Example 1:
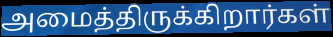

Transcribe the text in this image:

அமைத்திருக்கிறார்கள்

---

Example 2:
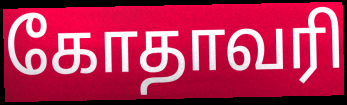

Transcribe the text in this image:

கோதாவரி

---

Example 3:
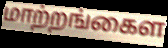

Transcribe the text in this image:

மாற்றங்கைள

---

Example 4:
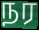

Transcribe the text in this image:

நர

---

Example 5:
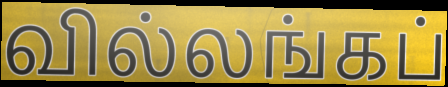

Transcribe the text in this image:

வில்லங்கப்